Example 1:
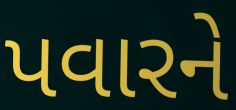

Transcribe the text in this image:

પવારને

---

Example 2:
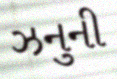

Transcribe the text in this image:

ઝનુની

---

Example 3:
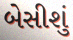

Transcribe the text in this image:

બેસીશું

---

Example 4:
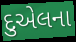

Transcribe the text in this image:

દુએલના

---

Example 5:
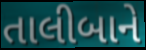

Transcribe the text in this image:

તાલીબાને